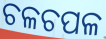
ଚଳଚପଳ